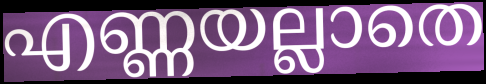
എണ്ണയല്ലാതെ